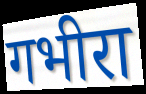
गभीरा